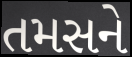
તમસને